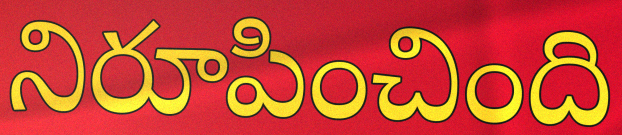
నిరూపించింది